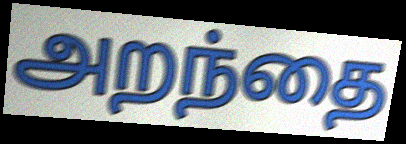
அறந்தை